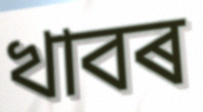
খাবৰ